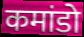
कमांडो